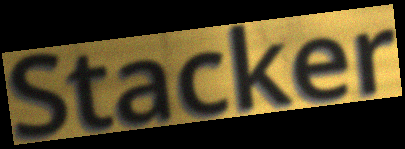
Stacker